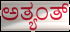
ಅತ್ಯಂತ್